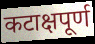
कटाक्षपूर्ण